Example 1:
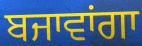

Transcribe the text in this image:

ਬਜਾਵਾਂਗਾ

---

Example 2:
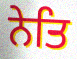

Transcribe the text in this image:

ਨੇਤਿ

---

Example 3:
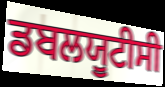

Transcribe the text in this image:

ਡਬਲਯੂਟੀਸੀ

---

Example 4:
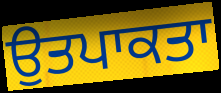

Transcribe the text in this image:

ਉਤਪਾਕਤਾ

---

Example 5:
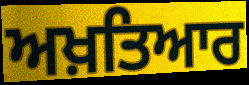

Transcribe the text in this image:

ਅਖ਼ਤਿਆਰ